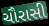
ચૌરાસી